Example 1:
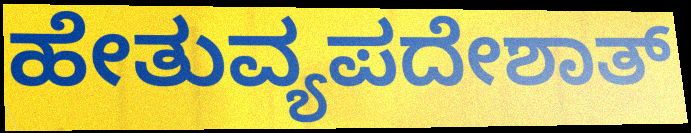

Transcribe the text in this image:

ಹೇತುವ್ಯಪದೇಶಾತ್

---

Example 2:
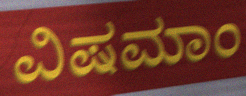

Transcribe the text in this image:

ವಿಷಮಾಂ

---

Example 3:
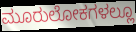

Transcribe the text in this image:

ಮೂರುಲೋಕಗಳಲ್ಲೂ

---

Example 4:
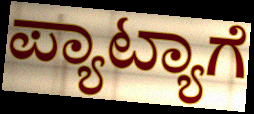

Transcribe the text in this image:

ಪ್ಯಾಟ್ಯಾಗೆ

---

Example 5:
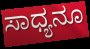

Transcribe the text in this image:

ಸಾಧ್ಯನೂ